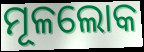
ମୂଳଲୋକ